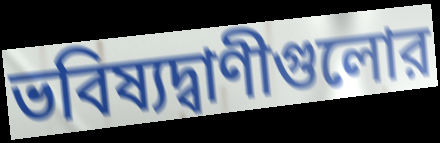
ভবিষ্যদ্বাণীগুলোর